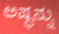
ಅಷ್ಟನ್ನು